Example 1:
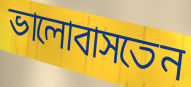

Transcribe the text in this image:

ভালোবাসতেন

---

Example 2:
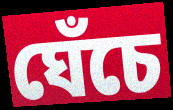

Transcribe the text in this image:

ঘেঁচে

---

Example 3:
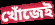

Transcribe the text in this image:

খোঁজেই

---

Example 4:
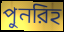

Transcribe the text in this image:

পুনরিহ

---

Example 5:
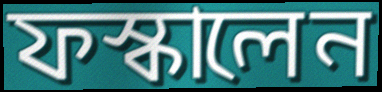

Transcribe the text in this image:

ফস্কালেন